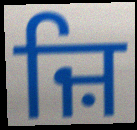
ਜ਼ਿ